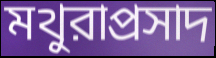
মথুরাপ্রসাদ